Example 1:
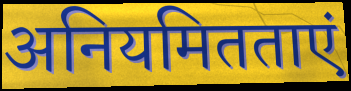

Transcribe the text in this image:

अनियमितताएं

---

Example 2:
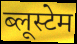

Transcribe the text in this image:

ब्लूस्टेम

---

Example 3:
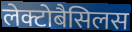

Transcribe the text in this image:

लेक्टोबैसिलस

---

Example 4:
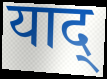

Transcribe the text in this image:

याद्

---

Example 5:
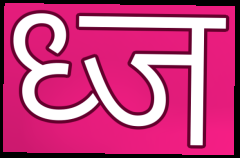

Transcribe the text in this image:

ध्ज